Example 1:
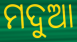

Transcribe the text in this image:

ମଦୁଆ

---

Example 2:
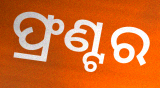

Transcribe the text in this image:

ଫ୍ରଣ୍ଟର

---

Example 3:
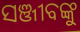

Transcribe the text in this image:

ସଞ୍ଜୀବଙ୍କୁ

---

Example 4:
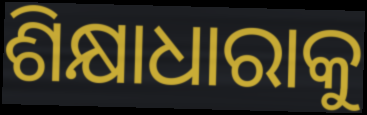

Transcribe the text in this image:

ଶିକ୍ଷାଧାରାକୁ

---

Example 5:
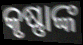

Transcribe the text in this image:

କୃଷ୍ଣାଙ୍କ